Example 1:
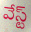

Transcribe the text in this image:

వేస్ట్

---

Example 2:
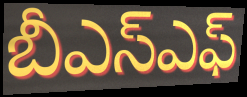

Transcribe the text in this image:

బీఎస్ఎఫ్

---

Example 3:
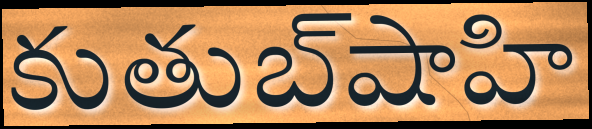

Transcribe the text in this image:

కుతుబ్‌షాహి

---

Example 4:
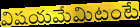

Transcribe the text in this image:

విషయమేమిటంటే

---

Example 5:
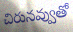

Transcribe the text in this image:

చిరునవ్వుతో